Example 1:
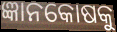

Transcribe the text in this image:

ଜ୍ଞାନକୋଷକୁ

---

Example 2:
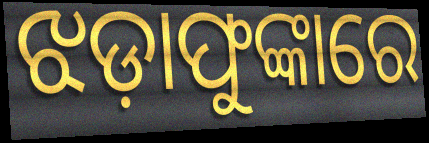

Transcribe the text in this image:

ଝଡ଼ାଫୁଙ୍କାରେ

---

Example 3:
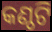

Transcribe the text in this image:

କଣ୍ଠଟି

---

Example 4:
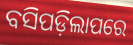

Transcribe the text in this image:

ବସିପଡ଼ିଲାପରେ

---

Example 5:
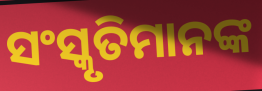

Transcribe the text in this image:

ସଂସ୍କୃତିମାନଙ୍କ